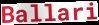
Ballari